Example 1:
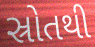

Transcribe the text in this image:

સ્રોતથી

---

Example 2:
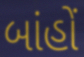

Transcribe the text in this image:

બાંહોં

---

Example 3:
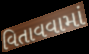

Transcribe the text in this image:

વિતાવવામાં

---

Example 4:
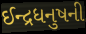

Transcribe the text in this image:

ઈન્દ્રધનુષની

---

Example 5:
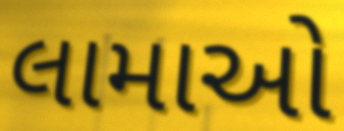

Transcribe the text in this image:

લામાઓ